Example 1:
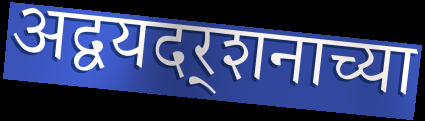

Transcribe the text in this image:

अद्वयदर्शनाच्या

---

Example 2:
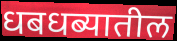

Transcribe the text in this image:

धबधब्यातील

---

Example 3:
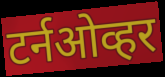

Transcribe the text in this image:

टर्नओव्हर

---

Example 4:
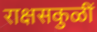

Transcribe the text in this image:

राक्षसकुळीं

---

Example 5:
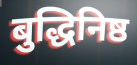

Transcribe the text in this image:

बुद्धिनिष्ठ